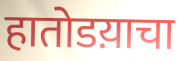
हातोडय़ाचा